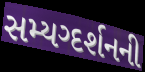
સમ્યગ્દર્શનની